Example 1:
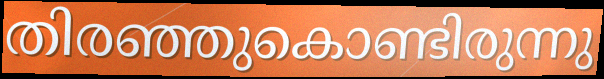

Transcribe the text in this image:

തിരഞ്ഞുകൊണ്ടിരുന്നു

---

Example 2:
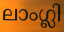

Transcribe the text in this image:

ലാംഗ്ലി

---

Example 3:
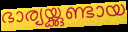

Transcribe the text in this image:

ഭാര്യയ്ക്കുണ്ടായ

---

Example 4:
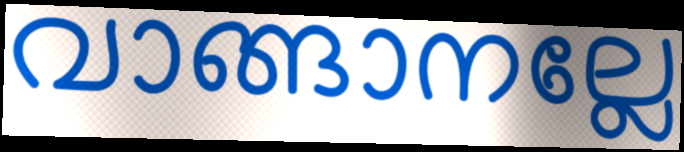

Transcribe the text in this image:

വാങ്ങാനല്ലേ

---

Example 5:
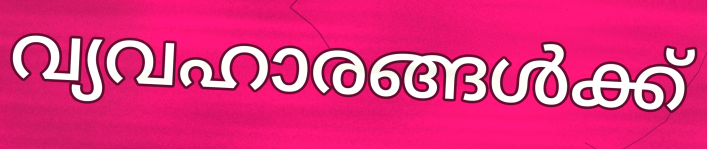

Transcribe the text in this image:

വ്യവഹാരങ്ങൾക്ക്